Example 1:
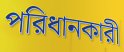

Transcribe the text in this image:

পরিধানকারী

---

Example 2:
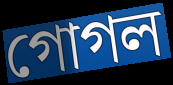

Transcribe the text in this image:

গোগল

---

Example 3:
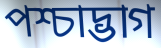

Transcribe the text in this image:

পশ্চাদ্ভাগ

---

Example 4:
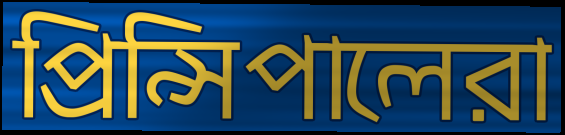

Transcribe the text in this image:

প্রিন্সিপালেরা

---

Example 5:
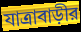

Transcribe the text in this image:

যাত্রাবাড়ীর